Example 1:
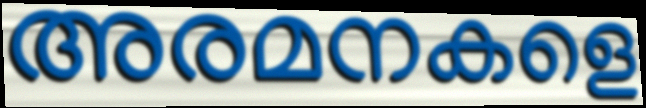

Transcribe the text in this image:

അരമനകളെ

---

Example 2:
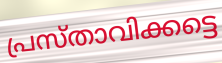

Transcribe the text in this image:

പ്രസ്താവിക്കട്ടെ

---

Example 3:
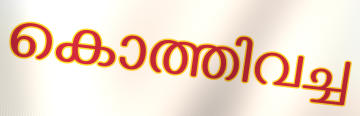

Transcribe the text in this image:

കൊത്തിവച്ച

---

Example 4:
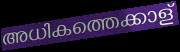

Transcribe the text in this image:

അധികത്തെക്കാള്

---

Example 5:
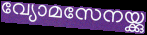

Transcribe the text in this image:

വ്യോമസേനയ്ക്കു